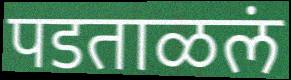
पडताळलं